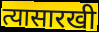
त्यासारखी